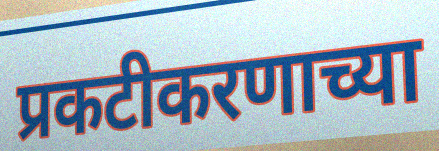
प्रकटीकरणाच्या